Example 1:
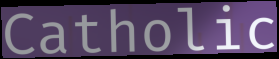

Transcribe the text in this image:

Catholic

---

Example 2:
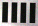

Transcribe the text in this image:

llll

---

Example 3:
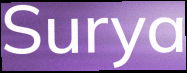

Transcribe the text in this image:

Surya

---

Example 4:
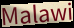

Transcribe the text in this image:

Malawi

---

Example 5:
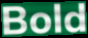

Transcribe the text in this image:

Bold